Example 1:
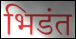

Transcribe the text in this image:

भिडंत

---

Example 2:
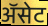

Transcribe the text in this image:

ॲसेट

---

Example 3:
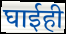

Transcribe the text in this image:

घाईही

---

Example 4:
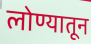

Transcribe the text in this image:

लोण्यातून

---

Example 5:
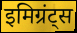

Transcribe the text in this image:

इमिग्रंट्स